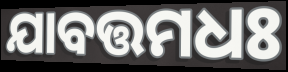
ଯାବତ୍ତମଧଃ